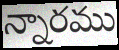
న్నారము